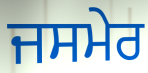
ਜਸਮੇਰ